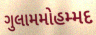
ગુલામમોહમ્મદ